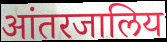
आंतरजालिय